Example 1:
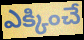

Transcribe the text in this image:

ఎక్కించే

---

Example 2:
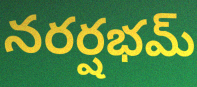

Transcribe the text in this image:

నరర్షభమ్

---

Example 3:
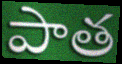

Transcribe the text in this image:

పాత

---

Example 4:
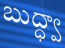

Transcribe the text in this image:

బుద్ధ్వా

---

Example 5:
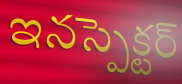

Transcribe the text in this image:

ఇనస్పెక్టర్